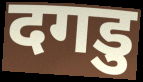
दगडु